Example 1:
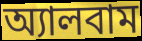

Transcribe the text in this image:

অ্যালবাম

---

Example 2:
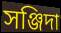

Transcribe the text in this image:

সঞ্জিদা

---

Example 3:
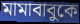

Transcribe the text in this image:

মামাবাবুকে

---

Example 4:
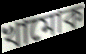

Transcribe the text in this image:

খামোক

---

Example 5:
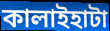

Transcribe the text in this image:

কালাইহাটা